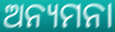
ଅନ୍ୟମନା